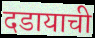
दडायाची